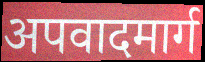
अपवादमार्ग